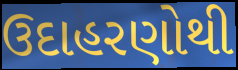
ઉદાહરણોથી